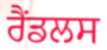
ਰੈਂਡਲਸ